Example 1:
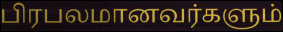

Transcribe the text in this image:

பிரபலமானவர்களும்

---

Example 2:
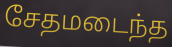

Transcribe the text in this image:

சேதமடைந்த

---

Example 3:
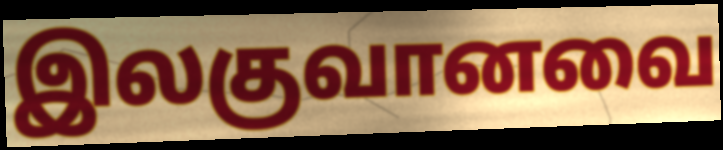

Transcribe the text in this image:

இலகுவானவை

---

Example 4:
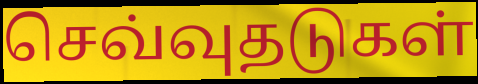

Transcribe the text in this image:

செவ்வுதடுகள்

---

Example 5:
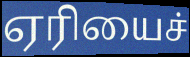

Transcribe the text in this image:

ஏரியைச்